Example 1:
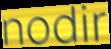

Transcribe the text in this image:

nodir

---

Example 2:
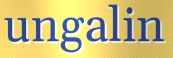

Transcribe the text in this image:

ungalin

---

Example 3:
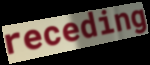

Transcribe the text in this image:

receding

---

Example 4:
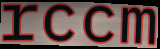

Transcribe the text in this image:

rccm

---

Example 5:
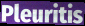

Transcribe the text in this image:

Pleuritis